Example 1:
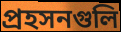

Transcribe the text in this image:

প্রহসনগুলি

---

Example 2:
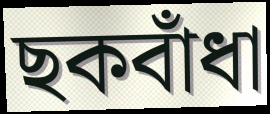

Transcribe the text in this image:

ছকবাঁধা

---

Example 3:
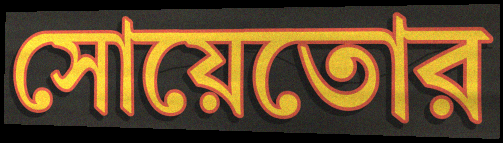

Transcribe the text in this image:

সোয়েতোর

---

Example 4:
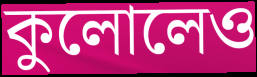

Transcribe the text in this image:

কুলোলেও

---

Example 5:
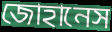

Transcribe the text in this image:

জোহানেস